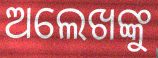
ଅଲେଖଙ୍କୁ